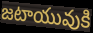
జటాయువుకి